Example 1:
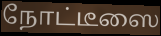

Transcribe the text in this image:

நோட்டீஸை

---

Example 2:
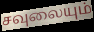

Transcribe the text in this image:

சவுலையும்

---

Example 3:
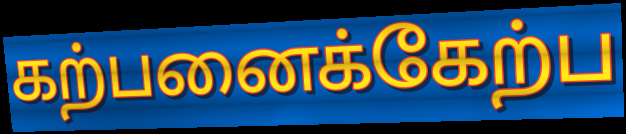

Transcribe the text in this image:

கற்பனைக்கேற்ப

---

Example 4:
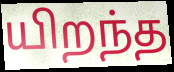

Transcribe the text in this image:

யிறந்த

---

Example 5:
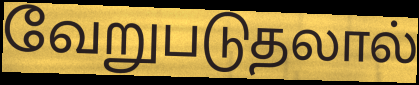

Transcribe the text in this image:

வேறுபடுதலால்